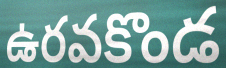
ఉరవకొండ